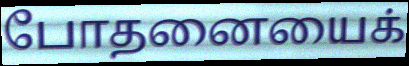
போதனையைக்